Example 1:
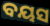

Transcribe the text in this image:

ବୟସ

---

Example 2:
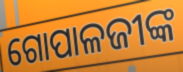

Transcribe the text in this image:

ଗୋପାଳଜୀଙ୍କ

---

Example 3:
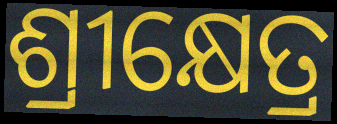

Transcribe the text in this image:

ଶ୍ରୀକ୍ଷେତ୍ର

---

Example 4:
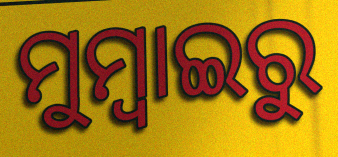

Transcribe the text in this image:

ମୁମ୍ବାଇରୁ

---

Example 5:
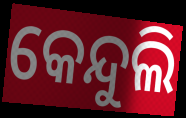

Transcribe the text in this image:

କେନ୍ଦୁଲି